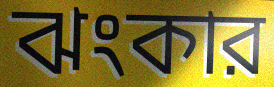
ঝংকার